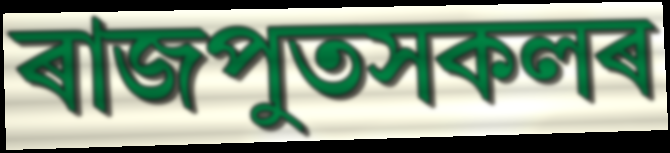
ৰাজপুতসকলৰ